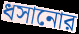
ধসানোর